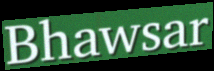
Bhawsar